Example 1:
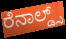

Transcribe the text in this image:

ರೆನಾಲ್ಡ್ಸ್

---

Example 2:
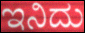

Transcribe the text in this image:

ಇನಿದು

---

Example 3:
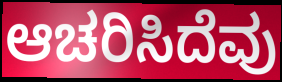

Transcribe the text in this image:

ಆಚರಿಸಿದೆವು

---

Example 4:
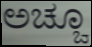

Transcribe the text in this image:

ಅಚ್ಚೂ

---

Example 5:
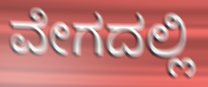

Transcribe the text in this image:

ವೇಗದಲ್ಲಿ